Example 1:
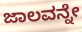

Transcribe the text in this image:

ಜಾಲವನ್ನೇ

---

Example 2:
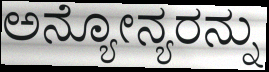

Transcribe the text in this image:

ಅನ್ಯೋನ್ಯರನ್ನು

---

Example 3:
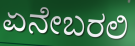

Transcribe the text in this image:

ಏನೇಬರಲಿ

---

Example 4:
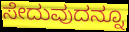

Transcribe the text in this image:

ಸೇದುವುದನ್ನೂ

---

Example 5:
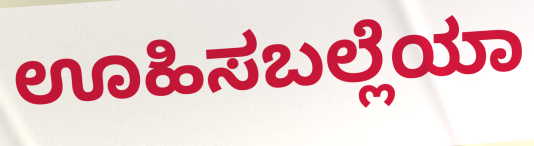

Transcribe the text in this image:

ಊಹಿಸಬಲ್ಲೆಯಾ